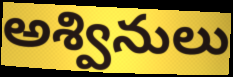
అశ్వినులు